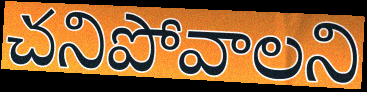
చనిపోవాలని